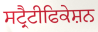
ਸਟ੍ਰੈਟੀਫਿਕੇਸ਼ਨ